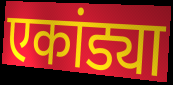
एकांड्या